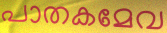
പാതകമേവ